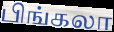
பிங்கலா